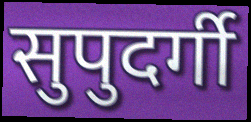
सुपुदर्गी